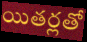
యితర్లతో